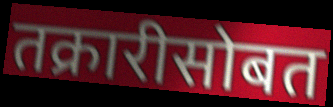
तक्रारीसोबत